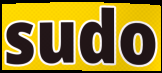
sudo